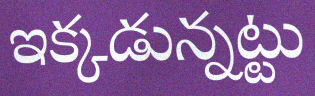
ఇక్కడున్నట్టు